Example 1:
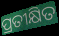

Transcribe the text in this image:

ପ୍ରତୀକ୍ଷିତ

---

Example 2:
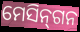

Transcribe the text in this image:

ମେସିନ୍‌ଗନ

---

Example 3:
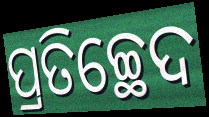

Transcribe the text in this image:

ପ୍ରତିଚ୍ଛେଦ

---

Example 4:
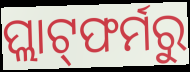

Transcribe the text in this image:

ପ୍ଲାଟ୍‌ଫର୍ମରୁ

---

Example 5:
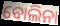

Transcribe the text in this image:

ବୋଲିନା